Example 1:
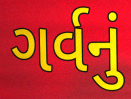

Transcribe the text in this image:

ગર્વનું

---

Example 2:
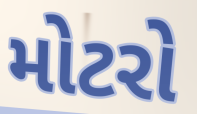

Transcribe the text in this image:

મોટરો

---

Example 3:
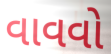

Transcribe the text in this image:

વાવવો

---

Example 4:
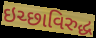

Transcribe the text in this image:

ઇચ્છાવિરુદ્ધ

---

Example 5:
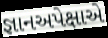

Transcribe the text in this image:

જ્ઞાનઅપેક્ષાએ